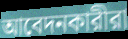
আবেদনকারীরা